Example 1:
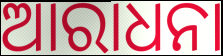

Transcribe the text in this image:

ଆରାଧନା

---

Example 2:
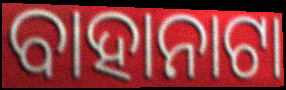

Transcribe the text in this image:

ବାହାନାଟା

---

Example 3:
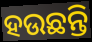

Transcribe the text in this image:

ହଉଛନ୍ତି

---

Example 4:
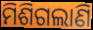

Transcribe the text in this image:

ମିଶିଗଲାଣି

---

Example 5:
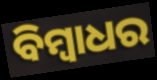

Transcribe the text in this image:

ବିମ୍ବାଧର